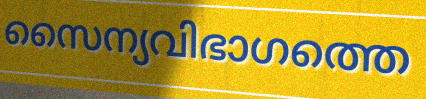
സൈന്യവിഭാഗത്തെ